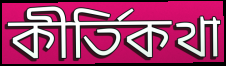
কীর্তিকথা